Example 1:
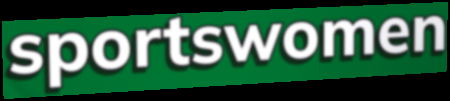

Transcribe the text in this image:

sportswomen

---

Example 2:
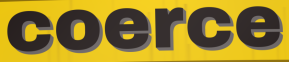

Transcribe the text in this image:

coerce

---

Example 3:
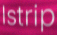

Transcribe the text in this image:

lstrip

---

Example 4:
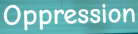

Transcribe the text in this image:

Oppression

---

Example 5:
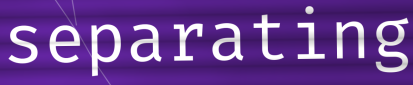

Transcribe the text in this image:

separating